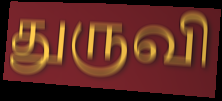
துருவி